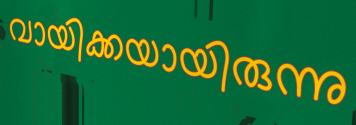
വായിക്കയായിരുന്നു